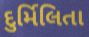
દુર્મિલિતા